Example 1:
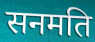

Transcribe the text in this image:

सनमति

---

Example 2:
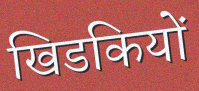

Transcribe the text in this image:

खिडकियों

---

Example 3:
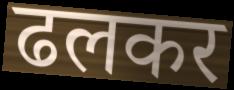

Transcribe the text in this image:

ढलकर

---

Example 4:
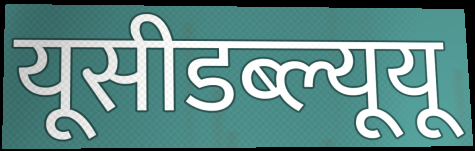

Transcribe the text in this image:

यूसीडब्ल्यूयू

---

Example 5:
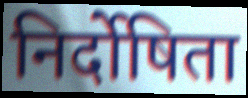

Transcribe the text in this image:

निर्दोषिता